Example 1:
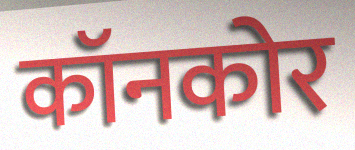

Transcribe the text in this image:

कॉनकोर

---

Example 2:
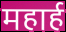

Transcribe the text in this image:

महार्ह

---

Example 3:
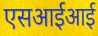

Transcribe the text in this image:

एसआईआई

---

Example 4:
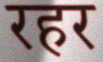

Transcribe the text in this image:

रहर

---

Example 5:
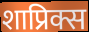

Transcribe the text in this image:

शाप्रिक्स